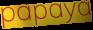
papaya